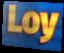
Loy